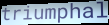
triumphal